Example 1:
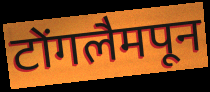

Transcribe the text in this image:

टोंगलैमपून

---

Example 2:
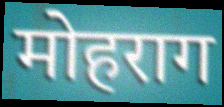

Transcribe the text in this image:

मोहराग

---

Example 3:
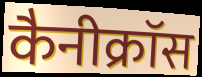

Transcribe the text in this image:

कैनीक्रॉस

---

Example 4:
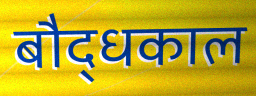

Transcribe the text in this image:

बौद्धकाल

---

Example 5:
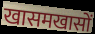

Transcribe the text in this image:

खासमखासों